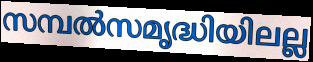
സമ്പൽസമൃദ്ധിയിലല്ല